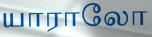
யாராலோ